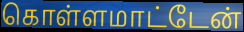
கொள்ளமாட்டேன்